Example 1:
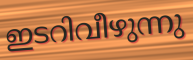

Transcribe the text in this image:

ഇടറിവീഴുന്നു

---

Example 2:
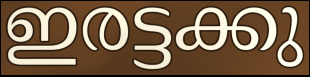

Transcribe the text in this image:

ഇരട്ടക്കു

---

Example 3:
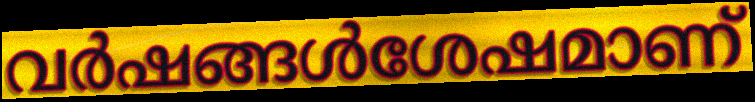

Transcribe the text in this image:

വർഷങ്ങൾശേഷമാണ്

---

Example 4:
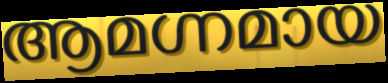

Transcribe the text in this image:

ആമഗ്നമായ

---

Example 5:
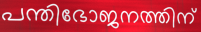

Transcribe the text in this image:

പന്തിഭോജനത്തിന്